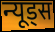
न्यूड्स